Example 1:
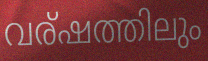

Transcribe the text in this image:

വര്ഷത്തിലും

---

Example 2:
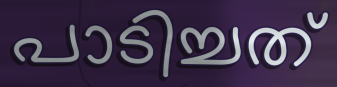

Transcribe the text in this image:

പാടിച്ചത്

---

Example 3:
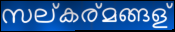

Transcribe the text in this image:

സല്കര്മങ്ങള്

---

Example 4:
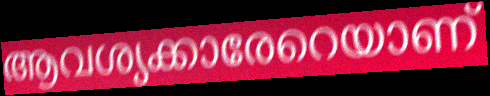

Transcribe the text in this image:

ആവശ്യക്കാരേറെയാണ്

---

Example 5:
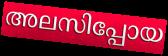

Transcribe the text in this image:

അലസിപ്പോയ